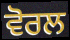
ਵੋਰਲ